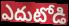
ఎదుటోడి